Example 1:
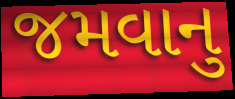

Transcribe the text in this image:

જમવાનુ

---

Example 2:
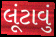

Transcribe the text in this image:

લૂંટાવું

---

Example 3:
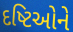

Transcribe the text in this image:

દષ્ટિઓને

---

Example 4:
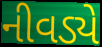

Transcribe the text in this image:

નીવડ્યે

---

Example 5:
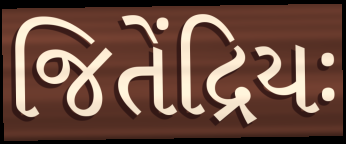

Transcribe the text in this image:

જિતેંદ્રિયઃ